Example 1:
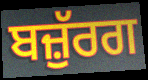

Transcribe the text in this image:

ਬਜ਼ੁੱਰਗ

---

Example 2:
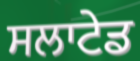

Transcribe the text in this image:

ਸਲਾਟੇਡ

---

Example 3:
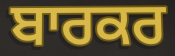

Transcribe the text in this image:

ਬਾਰਕਰ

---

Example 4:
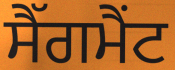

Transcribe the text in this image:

ਸੈੱਗਮੈਂਟ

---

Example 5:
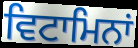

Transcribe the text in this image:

ਵਿਟਾਮਿਨਾਂ